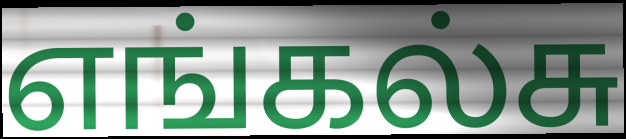
எங்கல்சு